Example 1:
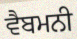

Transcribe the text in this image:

ਵੈਬਮਨੀ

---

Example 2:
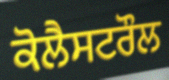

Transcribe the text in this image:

ਕੋਲੈਸਟਰੌਲ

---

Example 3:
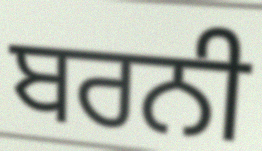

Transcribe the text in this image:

ਬਰਨੀ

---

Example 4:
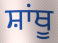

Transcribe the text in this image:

ਸ਼ਾਂਥੂ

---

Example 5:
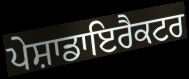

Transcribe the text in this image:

ਪੇਸ਼ਾਡਾਇਰੈਕਟਰ